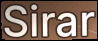
Sirar